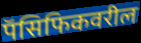
पॅसिफिकवरील